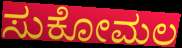
ಸುಕೋಮಲ